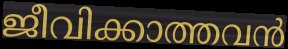
ജീവിക്കാത്തവൻ